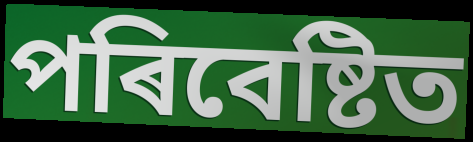
পৰিবেষ্টিত